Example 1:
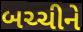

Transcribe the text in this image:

બચ્ચીને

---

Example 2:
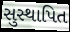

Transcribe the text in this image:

સુસ્થાપિત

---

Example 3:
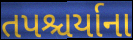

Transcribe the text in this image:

તપશ્ચર્યાના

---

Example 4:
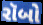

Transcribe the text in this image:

રૉબો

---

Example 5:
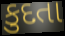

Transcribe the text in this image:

કુદતા